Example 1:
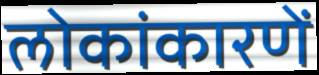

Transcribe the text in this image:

लोकांकारणें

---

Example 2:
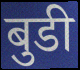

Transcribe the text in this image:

बुडी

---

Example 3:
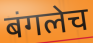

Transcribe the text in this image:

बंगलेच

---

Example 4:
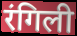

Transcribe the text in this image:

रंगिली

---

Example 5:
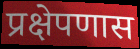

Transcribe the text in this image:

प्रक्षेपणास